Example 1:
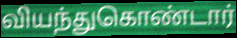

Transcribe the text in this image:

வியந்துகொண்டார்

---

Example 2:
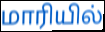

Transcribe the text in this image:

மாரியில்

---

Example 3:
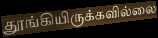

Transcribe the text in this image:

தூங்கியிருக்கவில்லை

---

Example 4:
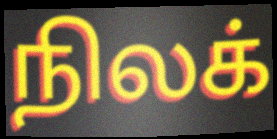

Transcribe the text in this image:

நிலக்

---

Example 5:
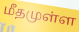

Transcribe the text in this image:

மீதமுள்ள